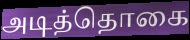
அடித்தொகை